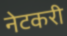
नेटकरी